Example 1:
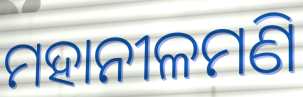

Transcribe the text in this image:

ମହାନୀଳମଣି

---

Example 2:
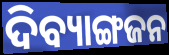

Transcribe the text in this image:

ଦିବ୍ୟାଙ୍ଗଜନ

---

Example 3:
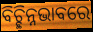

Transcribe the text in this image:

ବିଚ୍ଛିନ୍ନଭାବରେ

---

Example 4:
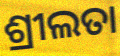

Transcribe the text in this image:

ଶ୍ରୀଲତା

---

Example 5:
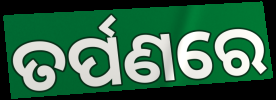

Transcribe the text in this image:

ତର୍ପଣରେ